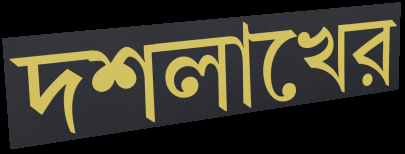
দশলাখের